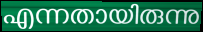
എന്നതായിരുന്നു